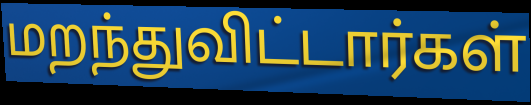
மறந்துவிட்டார்கள்